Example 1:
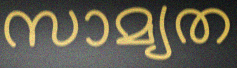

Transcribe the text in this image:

സാമ്യത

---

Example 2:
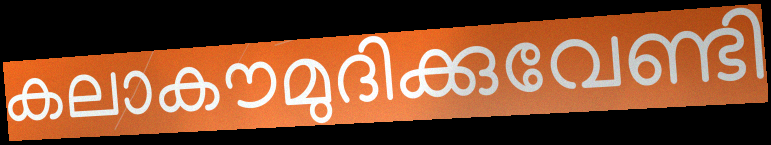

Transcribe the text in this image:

കലാകൗമുദിക്കുവേണ്ടി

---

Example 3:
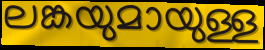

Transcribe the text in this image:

ലങ്കയുമായുള്ള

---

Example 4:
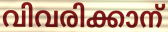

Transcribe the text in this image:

വിവരിക്കാന്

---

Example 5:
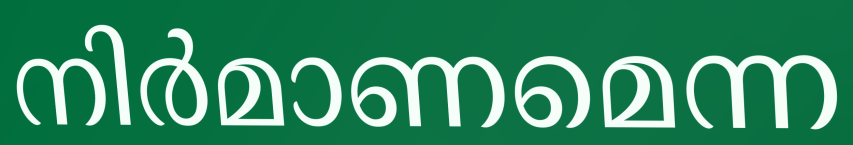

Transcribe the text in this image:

നിർമാണമെന്ന